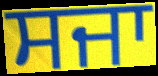
ਸਜਾ